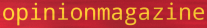
opinionmagazine